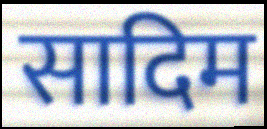
सादिम